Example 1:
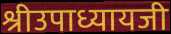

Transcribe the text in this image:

श्रीउपाध्यायजी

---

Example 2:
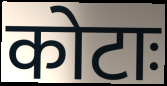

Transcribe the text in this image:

कोटाः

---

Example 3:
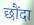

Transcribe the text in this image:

छौंदा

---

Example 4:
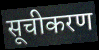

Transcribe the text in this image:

सूचीकरण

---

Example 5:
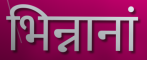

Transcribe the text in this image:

भिन्नानां